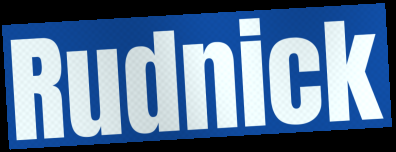
Rudnick